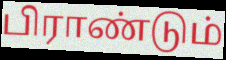
பிராண்டும்